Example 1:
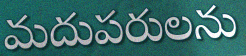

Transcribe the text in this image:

మదుపరులను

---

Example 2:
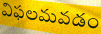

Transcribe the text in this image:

విఫలమవడం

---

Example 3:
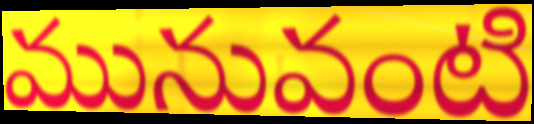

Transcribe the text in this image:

మునువంటి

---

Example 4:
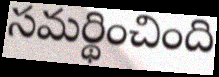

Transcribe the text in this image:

సమర్థించింది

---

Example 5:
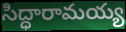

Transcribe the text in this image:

సిద్ధారామయ్య